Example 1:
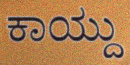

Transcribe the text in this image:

ಕಾಯ್ದು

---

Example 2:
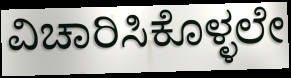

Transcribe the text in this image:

ವಿಚಾರಿಸಿಕೊಳ್ಳಲೇ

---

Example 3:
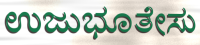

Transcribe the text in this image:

ಉಜುಭೂತೇಸು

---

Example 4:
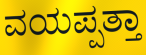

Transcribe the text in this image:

ವಯಪ್ಪತ್ತಾ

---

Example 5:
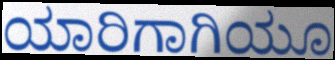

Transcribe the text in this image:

ಯಾರಿಗಾಗಿಯೂ